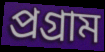
প্ৰগ্ৰাম